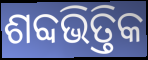
ଶବ୍ଦଭିତ୍ତିକ